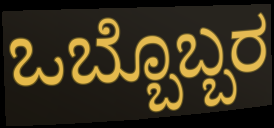
ಒಬ್ಬೊಬ್ಬರ